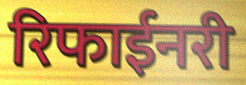
रिफाईनरी